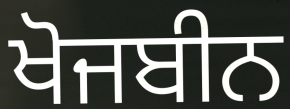
ਖੋਜਬੀਨ